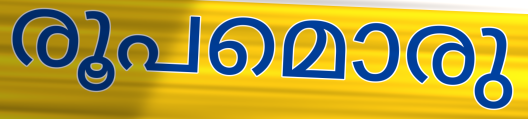
രൂപമൊരു